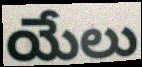
యేలు